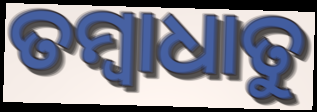
ତମ୍ବାଧାତୁ